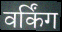
वर्किंग